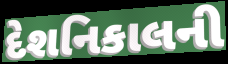
દેશનિકાલની